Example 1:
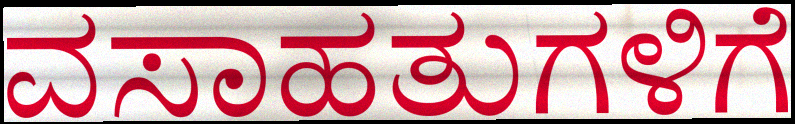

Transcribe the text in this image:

ವಸಾಹತುಗಳಿಗೆ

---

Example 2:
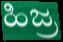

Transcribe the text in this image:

ಹಿಜ್ರ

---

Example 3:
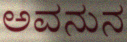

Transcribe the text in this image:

ಅವನುನ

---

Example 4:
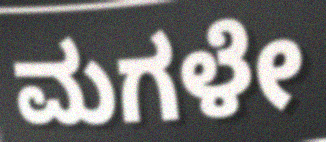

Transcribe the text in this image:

ಮಗಳೇ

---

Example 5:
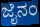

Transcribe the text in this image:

ಜೈನಂ